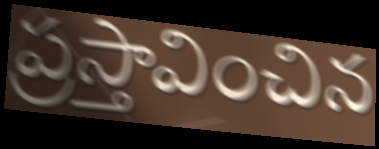
ప్రస్తావించిన